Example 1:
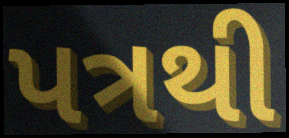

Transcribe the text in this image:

પત્રથી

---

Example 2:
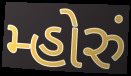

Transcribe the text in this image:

મ્હોરું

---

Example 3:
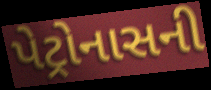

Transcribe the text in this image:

પેટ્રોનાસની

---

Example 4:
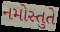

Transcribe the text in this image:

નમોસ્તુતે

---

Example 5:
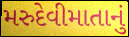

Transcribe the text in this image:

મરુદેવીમાતાનું